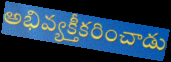
అభివ్యక్తీకరించాడు